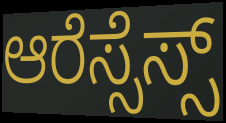
ಆರೆಸ್ಸೆಸ್ಸ್